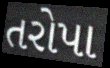
તરોપા